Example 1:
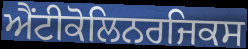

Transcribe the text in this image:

ਐਂਟੀਕੋਲਿਨਰਜਿਕਸ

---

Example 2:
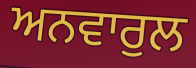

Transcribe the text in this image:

ਅਨਵਾਰੁਲ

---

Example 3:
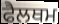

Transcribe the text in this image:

ਫੈਲਥਮ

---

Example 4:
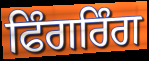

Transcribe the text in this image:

ਫਿੰਗਰਿੰਗ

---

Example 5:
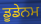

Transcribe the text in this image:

ਡੂਡੇਨਮ